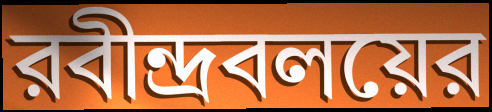
রবীন্দ্রবলয়ের